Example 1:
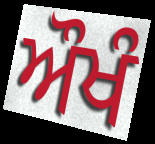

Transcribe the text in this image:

ਔਖੰ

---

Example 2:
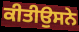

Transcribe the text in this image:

ਕੀਤੀਉਸਨੇ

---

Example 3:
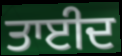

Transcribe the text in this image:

ਤਾਈਦ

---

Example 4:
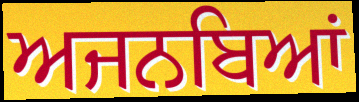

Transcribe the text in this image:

ਅਜਨਬਿਆਂ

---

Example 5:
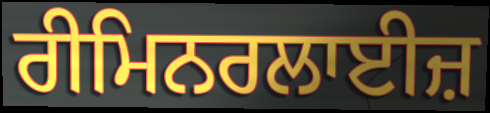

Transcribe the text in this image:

ਰੀਮਿਨਰਲਾਈਜ਼